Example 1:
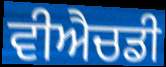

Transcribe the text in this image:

ਵੀਐਚਡੀ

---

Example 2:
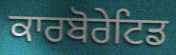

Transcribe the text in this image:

ਕਾਰਬੋਰੇਟਿਡ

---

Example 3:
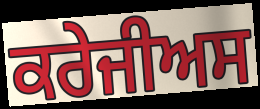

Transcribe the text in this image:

ਕਰੇਜੀਅਸ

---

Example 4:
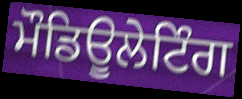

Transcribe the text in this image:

ਮੌਡਿਊਲੇਟਿੰਗ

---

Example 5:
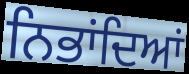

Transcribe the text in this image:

ਨਿਭਾਂਦਿਆਂ